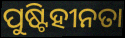
ପୁଷ୍ଟିହୀନତା